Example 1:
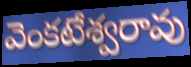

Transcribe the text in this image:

వెంకటేశ్వరావు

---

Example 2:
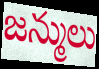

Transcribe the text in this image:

జన్ములు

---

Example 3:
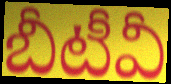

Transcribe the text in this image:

బీటీవీ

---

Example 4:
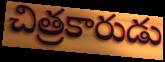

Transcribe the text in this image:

చిత్రకారుడు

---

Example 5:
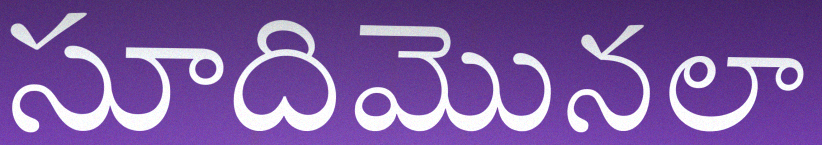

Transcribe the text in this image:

సూదిమొనలా